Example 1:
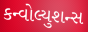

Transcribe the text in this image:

કન્વોલ્યુશન્સ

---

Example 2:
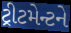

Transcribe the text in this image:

ટ્રીટમેન્ટને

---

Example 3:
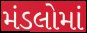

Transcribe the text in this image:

મંડલોમાં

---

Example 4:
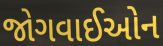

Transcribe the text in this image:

જોગવાઈઓન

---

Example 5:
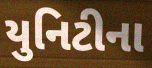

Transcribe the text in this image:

યુનિટીના